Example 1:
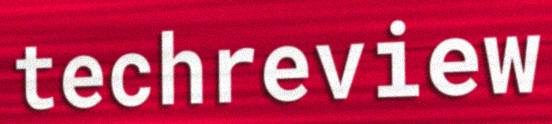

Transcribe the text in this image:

techreview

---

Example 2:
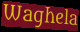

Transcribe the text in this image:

Waghela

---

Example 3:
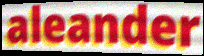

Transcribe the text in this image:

aleander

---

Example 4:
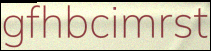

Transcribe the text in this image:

gfhbcimrst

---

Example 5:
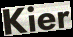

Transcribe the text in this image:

Kier